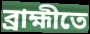
ব্রাহ্মীতে